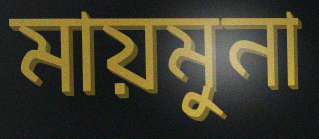
মায়মুনা